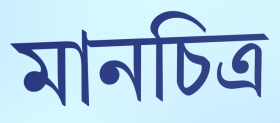
মানচিত্র